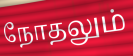
நோதலும்